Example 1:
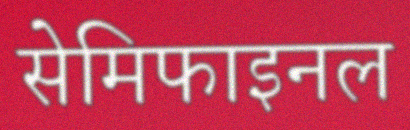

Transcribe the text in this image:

सेमिफाइनल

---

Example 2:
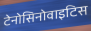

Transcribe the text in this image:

टेनोसिनोवाइटिस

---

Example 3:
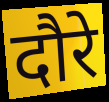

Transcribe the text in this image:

दौरे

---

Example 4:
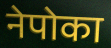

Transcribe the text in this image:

नेपोका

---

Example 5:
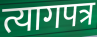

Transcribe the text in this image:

त्यागपत्र